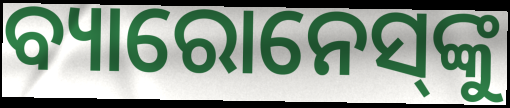
ବ୍ୟାରୋନେସ୍‌ଙ୍କୁ